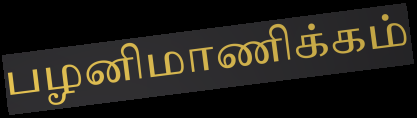
பழனிமாணிக்கம்